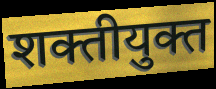
शक्तीयुक्त